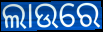
ଲାଉରେ